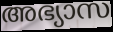
അഭ്യാസ